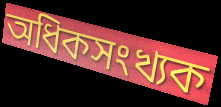
অধিকসংখ্যক